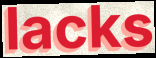
lacks